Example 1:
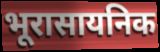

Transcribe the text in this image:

भूरासायनिक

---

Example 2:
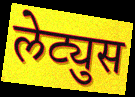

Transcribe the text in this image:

लेट्युस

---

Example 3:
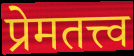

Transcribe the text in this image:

प्रेमतत्त्व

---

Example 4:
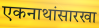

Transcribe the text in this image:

एकनाथांसारखा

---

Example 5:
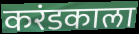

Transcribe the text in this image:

करंडकाला